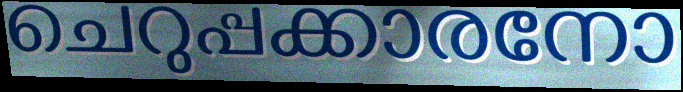
ചെറുപ്പക്കാരനോ